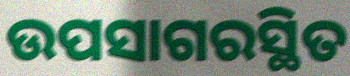
ଉପସାଗରସ୍ଥିତ